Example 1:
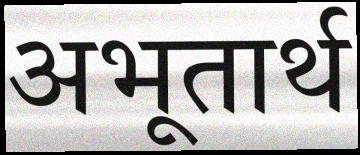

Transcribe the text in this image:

अभूतार्थ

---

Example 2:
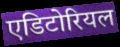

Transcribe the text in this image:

एडिटोरियल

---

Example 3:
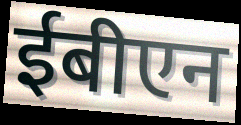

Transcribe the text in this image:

ईबीएन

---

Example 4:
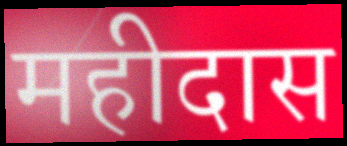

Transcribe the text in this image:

महीदास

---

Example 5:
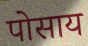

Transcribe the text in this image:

पोसाय